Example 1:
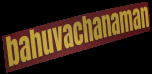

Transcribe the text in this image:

bahuvachanaman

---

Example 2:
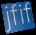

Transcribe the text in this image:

jfif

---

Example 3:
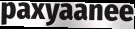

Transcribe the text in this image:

paxyaanee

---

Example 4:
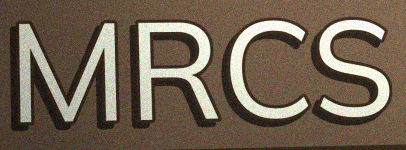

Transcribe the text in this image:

MRCS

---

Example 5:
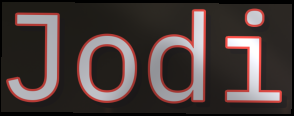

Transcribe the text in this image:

Jodi